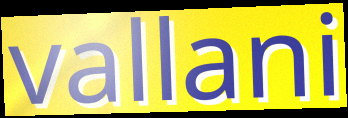
vallani